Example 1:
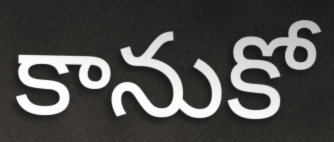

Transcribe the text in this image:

కానుకో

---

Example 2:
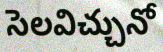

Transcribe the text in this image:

సెలవిచ్చునో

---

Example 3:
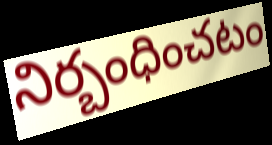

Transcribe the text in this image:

నిర్బంధించటం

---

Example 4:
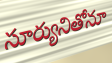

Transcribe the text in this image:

సూర్యునితోనూ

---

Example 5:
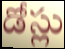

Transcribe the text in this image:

డోస్లు